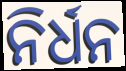
ନିର୍ଧନ